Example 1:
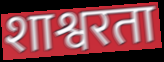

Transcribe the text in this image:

शाश्वरता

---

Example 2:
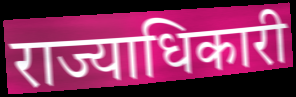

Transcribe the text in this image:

राज्याधिकारी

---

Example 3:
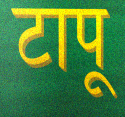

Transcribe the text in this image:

टापू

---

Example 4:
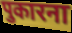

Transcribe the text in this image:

पुकारना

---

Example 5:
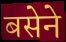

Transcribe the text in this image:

बसेने